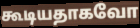
கூடியதாகவோ